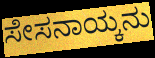
ಸೇಸನಾಯ್ಕನು